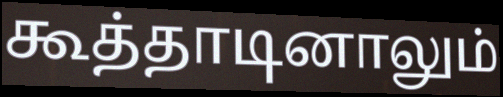
கூத்தாடினாலும்